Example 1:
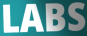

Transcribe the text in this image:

LABS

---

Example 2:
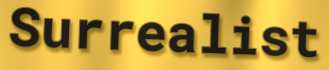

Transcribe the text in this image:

Surrealist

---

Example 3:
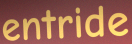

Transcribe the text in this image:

entride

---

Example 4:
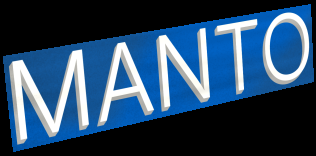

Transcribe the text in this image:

MANTO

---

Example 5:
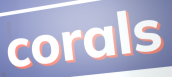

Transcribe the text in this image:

corals